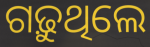
ଗଢ଼ୁଥିଲେ